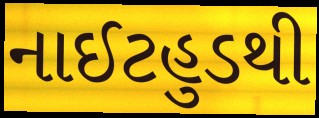
નાઈટહુડથી